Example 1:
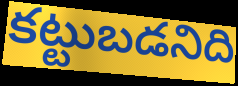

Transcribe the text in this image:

కట్టుబడనిది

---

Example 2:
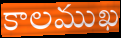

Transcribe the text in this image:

కాలముఖ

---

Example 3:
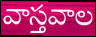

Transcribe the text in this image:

వాస్తవాల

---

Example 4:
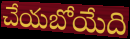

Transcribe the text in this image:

చేయబోయేది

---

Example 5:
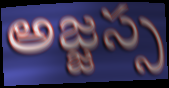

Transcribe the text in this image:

అజ్జస్స